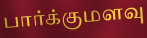
பார்க்குமளவு